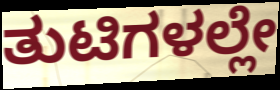
ತುಟಿಗಳಲ್ಲೇ